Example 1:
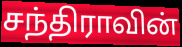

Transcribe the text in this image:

சந்திராவின்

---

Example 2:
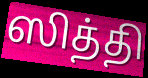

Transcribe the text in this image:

ஸித்தி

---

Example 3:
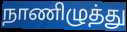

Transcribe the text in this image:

நாணிழுத்து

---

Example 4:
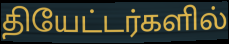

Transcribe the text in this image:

தியேட்டர்களில்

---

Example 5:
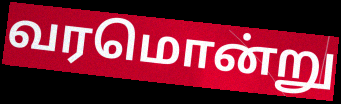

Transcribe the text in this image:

வரமொன்று